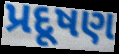
પ્રદૂષણ